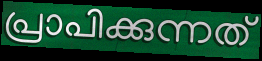
പ്രാപിക്കുന്നത്